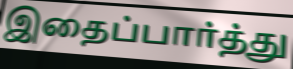
இதைப்பார்த்து